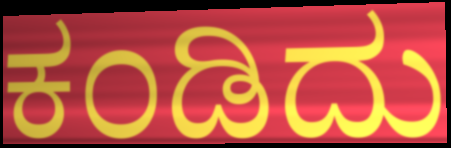
ಕಂಡಿದು